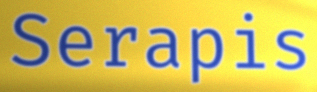
Serapis